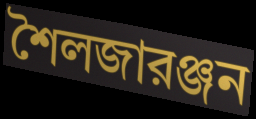
শৈলজারঞ্জন